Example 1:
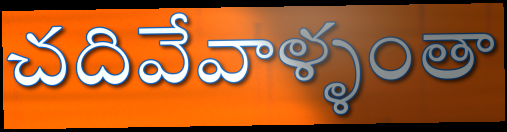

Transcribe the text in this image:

చదివేవాళ్ళంతా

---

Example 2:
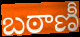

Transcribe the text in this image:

బఠాణీ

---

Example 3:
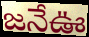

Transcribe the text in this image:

జనేఊ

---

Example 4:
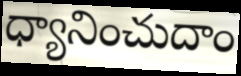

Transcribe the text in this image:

ధ్యానించుదాం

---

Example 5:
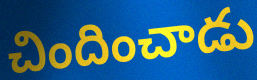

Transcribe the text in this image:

చిందించాడు